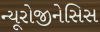
ન્યૂરોજીનેસિસ